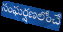
సంఘర్షణలోంచే